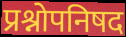
प्रश्नोपनिषद